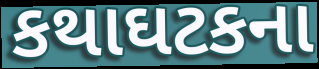
કથાઘટકના